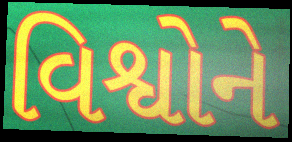
વિશ્વોને